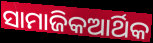
ସାମାଜିକଆର୍ଥିକ